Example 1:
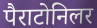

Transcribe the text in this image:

पैराटोनिलर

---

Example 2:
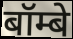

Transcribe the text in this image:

बॉम्बे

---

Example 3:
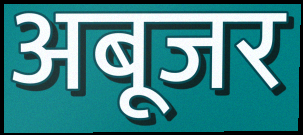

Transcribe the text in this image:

अबूजर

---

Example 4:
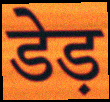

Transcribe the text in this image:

डेड़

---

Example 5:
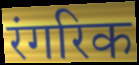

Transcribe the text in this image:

रंगरिक